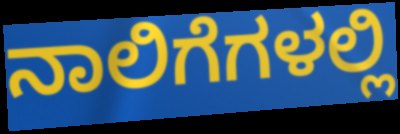
ನಾಲಿಗೆಗಳಲ್ಲಿ